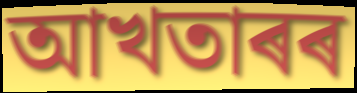
আখতাৰৰ